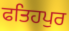
ਫਤਿਹਪੁਰ